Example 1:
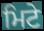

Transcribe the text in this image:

ਮਿਟੇ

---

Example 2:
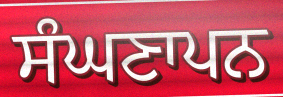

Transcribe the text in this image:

ਸੰਘਣਾਪਨ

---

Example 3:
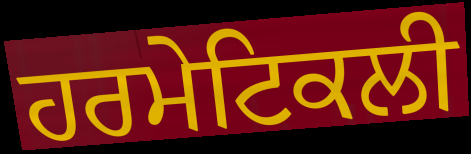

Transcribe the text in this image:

ਹਰਮੇਟਿਕਲੀ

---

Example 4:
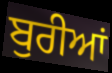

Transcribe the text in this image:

ਬੁਰੀਆਂ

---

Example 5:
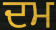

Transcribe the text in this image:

ਦਮ